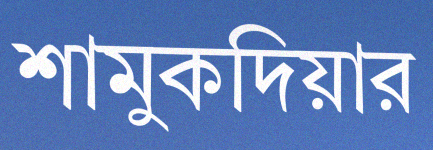
শামুকদিয়ার